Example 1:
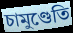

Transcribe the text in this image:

চামুণ্ডেতি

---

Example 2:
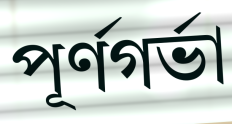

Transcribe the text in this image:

পূর্ণগর্ভা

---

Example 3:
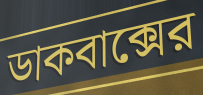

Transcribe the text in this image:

ডাকবাক্সের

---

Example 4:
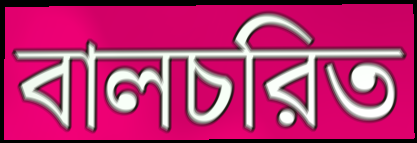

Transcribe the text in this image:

বালচরিত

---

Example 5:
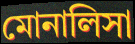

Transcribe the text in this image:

মোনালিসা